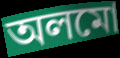
অলমো